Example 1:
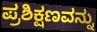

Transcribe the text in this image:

ಪ್ರಶಿಕ್ಷಣವನ್ನು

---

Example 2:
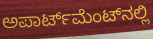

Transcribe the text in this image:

ಅಪಾರ್ಟ್‌ಮೆಂಟ್‌ನಲ್ಲಿ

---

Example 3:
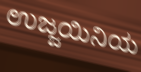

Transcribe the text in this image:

ಉಜ್ಜಯಿನಿಯ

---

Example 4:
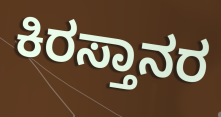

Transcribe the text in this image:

ಕಿರಸ್ತಾನರ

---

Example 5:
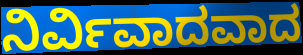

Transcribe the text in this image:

ನಿರ್ವಿವಾದವಾದ